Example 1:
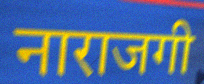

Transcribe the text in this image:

नाराजगी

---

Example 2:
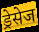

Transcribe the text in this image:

ड्रेसेज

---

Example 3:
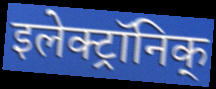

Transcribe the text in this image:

इलेक्ट्रॉनिक्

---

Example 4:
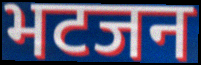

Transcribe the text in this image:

भटजन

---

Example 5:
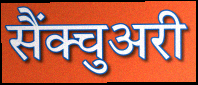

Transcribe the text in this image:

सैंक्चुअरी